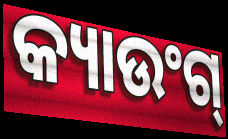
କ୍ୟାଉଂଗ୍